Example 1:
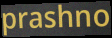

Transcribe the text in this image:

prashno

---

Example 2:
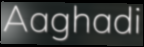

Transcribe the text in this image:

Aaghadi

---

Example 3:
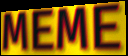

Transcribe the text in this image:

MEME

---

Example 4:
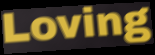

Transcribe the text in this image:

Loving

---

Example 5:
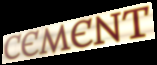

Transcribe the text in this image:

CEMENT